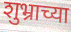
शुभ्राच्या